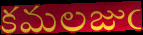
కమలజుఁ